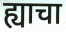
ह्याचा